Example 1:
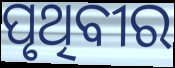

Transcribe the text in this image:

ପୃଥିବୀର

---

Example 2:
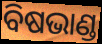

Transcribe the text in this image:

ବିଷଭାଣ୍ଡ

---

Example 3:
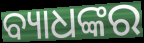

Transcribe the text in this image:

ବ୍ୟାଧଙ୍କର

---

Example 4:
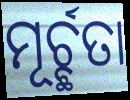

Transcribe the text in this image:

ମୂର୍ଚ୍ଛତା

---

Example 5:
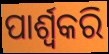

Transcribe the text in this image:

ପାର୍ଶ୍ଵକରି